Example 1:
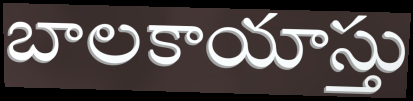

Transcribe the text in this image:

బాలకాయాస్తు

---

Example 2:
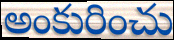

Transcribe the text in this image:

అంకురించు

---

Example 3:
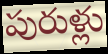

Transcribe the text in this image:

పురుళ్లు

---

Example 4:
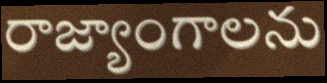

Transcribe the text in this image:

రాజ్యాంగాలను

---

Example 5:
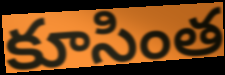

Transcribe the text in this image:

కూసింత